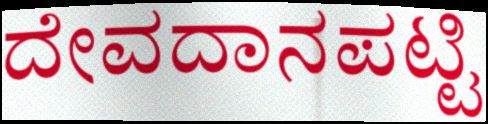
ದೇವದಾನಪಟ್ಟಿ